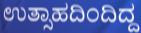
ಉತ್ಸಾಹದಿಂದಿದ್ದ